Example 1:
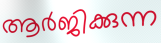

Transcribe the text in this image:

ആർജിക്കുന്ന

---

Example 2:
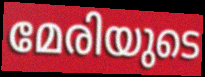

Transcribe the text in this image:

മേരിയുടെ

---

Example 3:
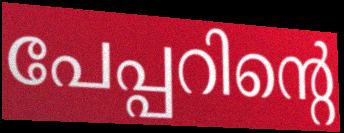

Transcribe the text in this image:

പേപ്പറിന്റെ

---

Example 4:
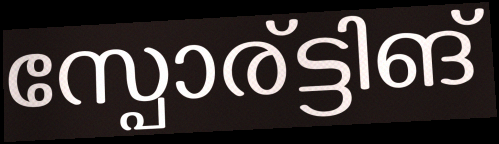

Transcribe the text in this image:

സ്പോര്ട്ടിങ്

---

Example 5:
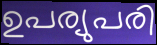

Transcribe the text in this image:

ഉപര്യുപരി